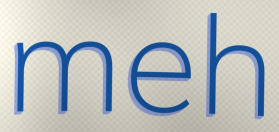
meh